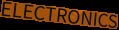
ELECTRONICS